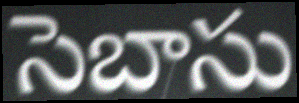
సెబాసు